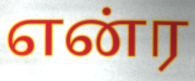
என்ர